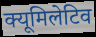
क्यूमिलेटिव